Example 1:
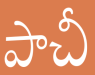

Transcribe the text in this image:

పాచీ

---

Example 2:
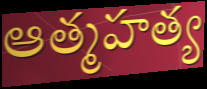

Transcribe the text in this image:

ఆత్మహత్య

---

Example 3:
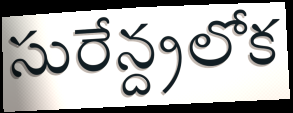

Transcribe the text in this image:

సురేన్ద్రలోక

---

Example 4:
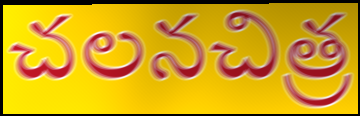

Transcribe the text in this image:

చలనచిత్ర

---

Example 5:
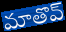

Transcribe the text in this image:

మాతొవ్